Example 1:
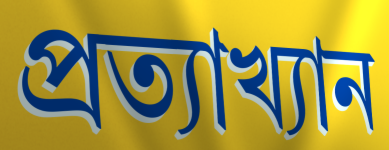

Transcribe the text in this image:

প্রত্যাখ্যান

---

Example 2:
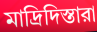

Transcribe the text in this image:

মাদ্রিদিস্তারা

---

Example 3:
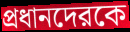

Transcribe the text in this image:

প্রধানদেরকে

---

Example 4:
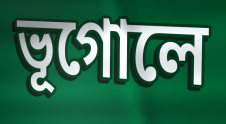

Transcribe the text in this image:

ভূগোলে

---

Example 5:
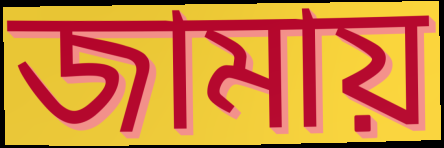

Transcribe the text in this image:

জামায়